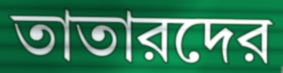
তাতারদের